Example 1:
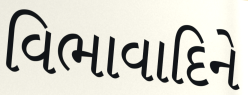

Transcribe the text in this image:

વિભાવાદિને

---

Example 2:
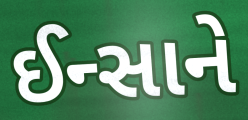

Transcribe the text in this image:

ઈન્સાને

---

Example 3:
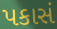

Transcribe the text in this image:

પકાસં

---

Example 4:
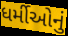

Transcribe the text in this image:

ધર્મીઓનું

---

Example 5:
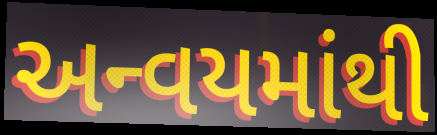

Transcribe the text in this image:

અન્વયમાંથી